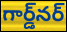
గార్డ్‌నర్